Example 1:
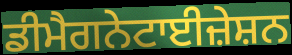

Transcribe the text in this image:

ਡੀਮੈਗਨੇਟਾਈਜ਼ੇਸ਼ਨ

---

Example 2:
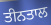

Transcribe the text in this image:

ਤੀਨਤਾਲ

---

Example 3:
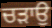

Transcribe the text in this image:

ਚੜਾਉ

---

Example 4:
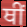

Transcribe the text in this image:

ਥੀਂ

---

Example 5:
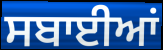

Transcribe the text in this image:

ਸਬਾਈਆਂ